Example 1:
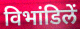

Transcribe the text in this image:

विभांडिलें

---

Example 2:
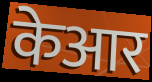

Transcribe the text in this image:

केआर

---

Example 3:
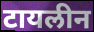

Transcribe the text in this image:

टायलीन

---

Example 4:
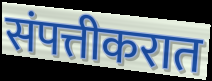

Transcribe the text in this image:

संपत्तीकरात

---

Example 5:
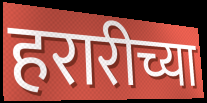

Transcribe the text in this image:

हरारीच्या